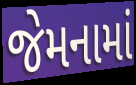
જેમનામાં